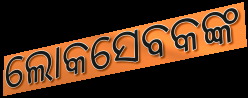
ଲୋକସେବକଙ୍କ